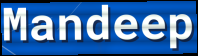
Mandeep